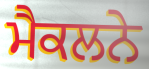
ਮੈਕਲਨੇ